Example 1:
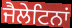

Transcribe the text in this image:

ਜੈਲੇਟਿਨਾਂ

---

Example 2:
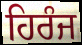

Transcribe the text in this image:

ਹਿਰੰਜ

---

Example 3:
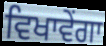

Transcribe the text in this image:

ਵਿਖਾਵੇਂਗਾ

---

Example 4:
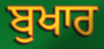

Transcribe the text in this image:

ਬੁਖਾਰ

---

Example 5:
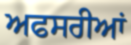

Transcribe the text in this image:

ਅਫਸਰੀਆਂ